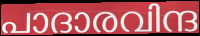
പാദാരവിന്ദ